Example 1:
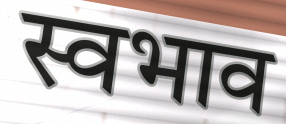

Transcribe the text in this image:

स्वभाव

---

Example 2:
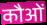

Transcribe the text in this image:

कौओं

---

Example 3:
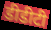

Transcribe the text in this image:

डीडीटी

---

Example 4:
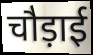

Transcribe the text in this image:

चौड़ाई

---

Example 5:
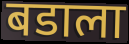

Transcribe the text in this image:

बडाला